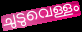
ചുടുവെള്ളം